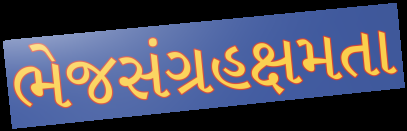
ભેજસંગ્રહક્ષમતા